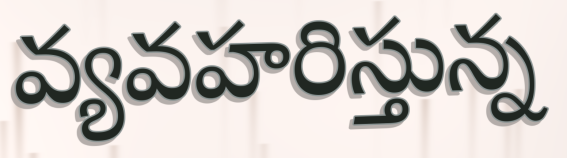
వ్యవహరిస్తున్న